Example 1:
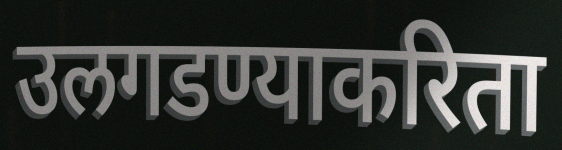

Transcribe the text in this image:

उलगडण्याकरिता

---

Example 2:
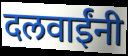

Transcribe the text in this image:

दलवाईंनी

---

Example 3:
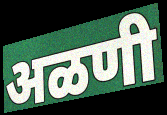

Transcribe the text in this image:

अळणी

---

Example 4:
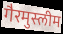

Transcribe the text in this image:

गैरमुस्लीम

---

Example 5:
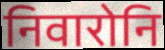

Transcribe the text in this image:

निवारोनि